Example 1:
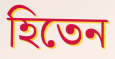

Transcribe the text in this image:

হিতেন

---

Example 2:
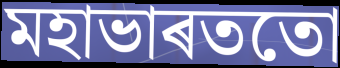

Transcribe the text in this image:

মহাভাৰততো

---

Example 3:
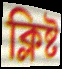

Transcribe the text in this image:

ক্লিষ্ট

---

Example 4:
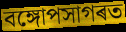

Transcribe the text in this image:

বঙ্গোপসাগৰত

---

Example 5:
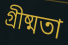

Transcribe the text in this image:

গ্ৰীষ্মতা